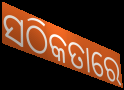
ସଠିକତାରେ